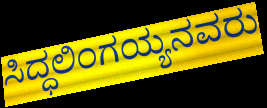
ಸಿದ್ಧಲಿಂಗಯ್ಯನವರು